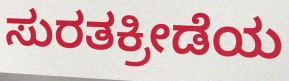
ಸುರತಕ್ರೀಡೆಯ